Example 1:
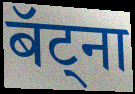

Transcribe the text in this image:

बॅट्ना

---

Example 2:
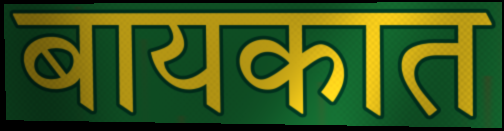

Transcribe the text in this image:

बायकात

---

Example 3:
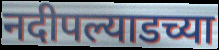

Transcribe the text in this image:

नदीपल्याडच्या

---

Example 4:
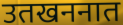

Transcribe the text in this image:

उतखननात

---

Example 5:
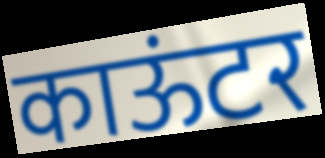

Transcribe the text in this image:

काऊंटर